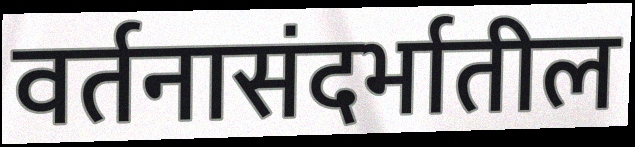
वर्तनासंदर्भातील